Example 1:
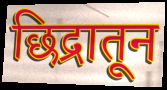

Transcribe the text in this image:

छिद्रातून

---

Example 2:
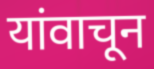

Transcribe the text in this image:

यांवाचून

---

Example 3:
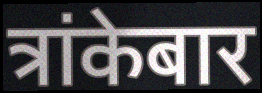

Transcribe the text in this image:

त्रांकेबार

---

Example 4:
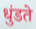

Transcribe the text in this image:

धुंडते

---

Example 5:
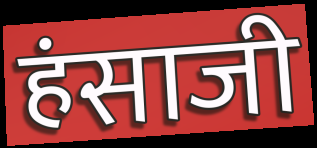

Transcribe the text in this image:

हंसाजी